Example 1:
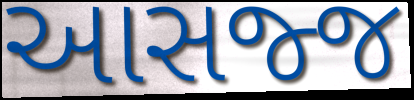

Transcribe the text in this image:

આસજ્જ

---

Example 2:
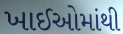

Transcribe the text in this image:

ખાઈઓમાંથી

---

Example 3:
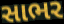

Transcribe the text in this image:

સાભર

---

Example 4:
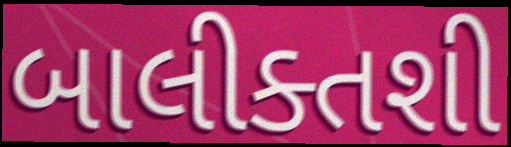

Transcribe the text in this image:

બાલીક્તશી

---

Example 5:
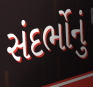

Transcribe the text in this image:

સંદર્ભોનું